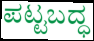
ಪಟ್ಟಬದ್ಧ